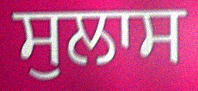
ਸੁਲਾਸ